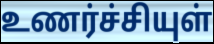
உணர்ச்சியுள்